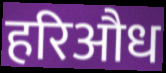
हरिऔध